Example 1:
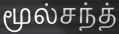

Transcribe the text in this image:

மூல்சந்த்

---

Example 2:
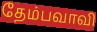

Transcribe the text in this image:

தேம்பவாவி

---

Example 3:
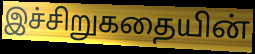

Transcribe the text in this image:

இச்சிறுகதையின்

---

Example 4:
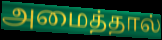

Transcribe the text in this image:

அமைத்தால்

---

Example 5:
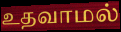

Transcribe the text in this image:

உதவாமல்